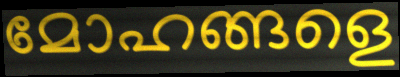
മോഹങ്ങളെ